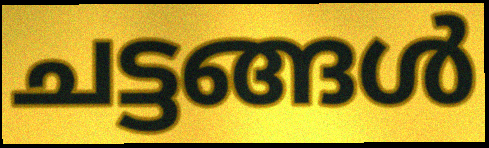
ചട്ടങ്ങൾ